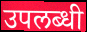
उपलब्धी